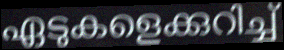
ഏടുകളെക്കുറിച്ച്